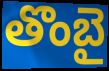
తొంబై